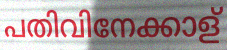
പതിവിനേക്കാള്